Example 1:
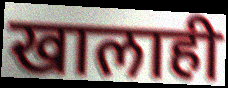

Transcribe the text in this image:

खालाही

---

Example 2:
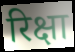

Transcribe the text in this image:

रिक्षा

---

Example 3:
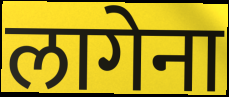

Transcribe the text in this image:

लागेना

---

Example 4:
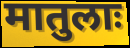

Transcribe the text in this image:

मातुलाः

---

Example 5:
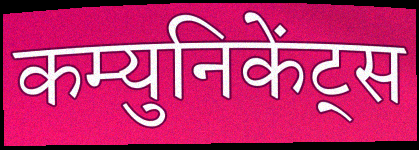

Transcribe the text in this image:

कम्युनिकेंट्स